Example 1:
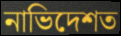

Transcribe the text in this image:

নাভিদেশত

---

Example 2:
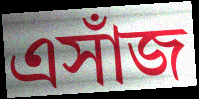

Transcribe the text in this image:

এসাঁজ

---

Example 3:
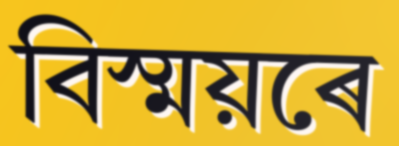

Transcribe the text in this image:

বিস্ময়ৰে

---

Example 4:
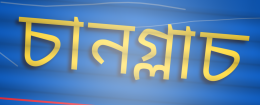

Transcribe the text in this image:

চানগ্লাচ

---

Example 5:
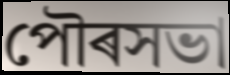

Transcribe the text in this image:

পৌৰসভা